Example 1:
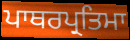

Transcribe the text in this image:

ਪਾਥਰਪ੍ਰਤਿਮਾ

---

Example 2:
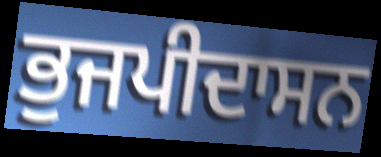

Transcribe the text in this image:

ਭੁਜਪੀਦਾਸਨ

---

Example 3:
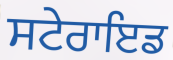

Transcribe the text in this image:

ਸਟੇਰਾਇਡ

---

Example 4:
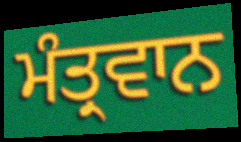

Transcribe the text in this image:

ਮੰਤ੍ਰਵਾਨ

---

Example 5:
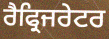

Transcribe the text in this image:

ਰੈਫ੍ਰਿਜਰੇਟਰ